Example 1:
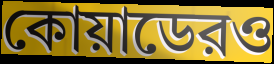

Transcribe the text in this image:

কোয়াডেরও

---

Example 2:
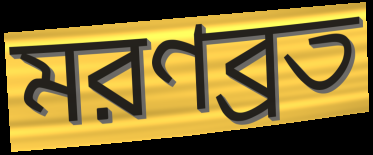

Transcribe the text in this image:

মরণব্রত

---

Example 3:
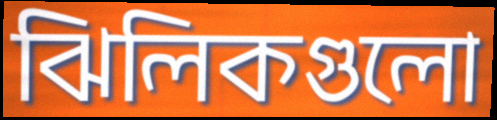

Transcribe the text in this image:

ঝিলিকগুলো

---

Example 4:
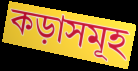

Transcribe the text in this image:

কড়াসমূহ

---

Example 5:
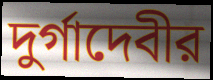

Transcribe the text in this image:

দুর্গাদেবীর